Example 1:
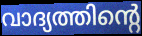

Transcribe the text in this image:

വാദ്യത്തിന്റെ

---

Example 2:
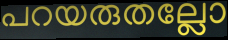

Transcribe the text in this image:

പറയരുതല്ലോ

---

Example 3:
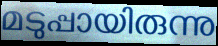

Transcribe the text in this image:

മടുപ്പായിരുന്നു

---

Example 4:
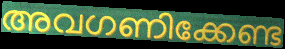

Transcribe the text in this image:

അവഗണിക്കേണ്ട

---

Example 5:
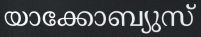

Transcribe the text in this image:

യാക്കോബ്യുസ്